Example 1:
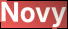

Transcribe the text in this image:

Novy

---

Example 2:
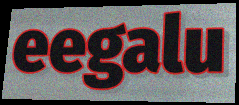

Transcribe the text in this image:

eegalu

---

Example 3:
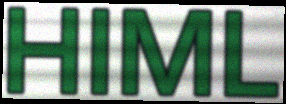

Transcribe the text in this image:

HIML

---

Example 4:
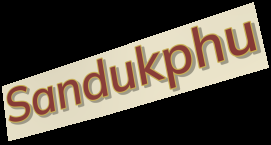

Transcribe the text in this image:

Sandukphu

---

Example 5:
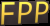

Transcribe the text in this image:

FPP